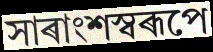
সাৰাংশস্বৰূপে